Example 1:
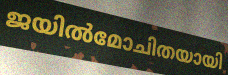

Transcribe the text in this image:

ജയിൽമോചിതയായി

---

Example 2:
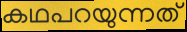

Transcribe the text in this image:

കഥപറയുന്നത്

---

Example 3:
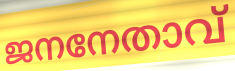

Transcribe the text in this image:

ജനനേതാവ്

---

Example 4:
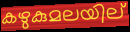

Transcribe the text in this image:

കഴുകുമലയില്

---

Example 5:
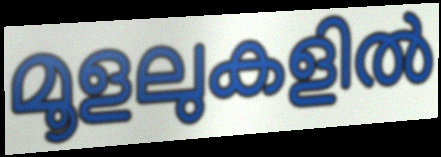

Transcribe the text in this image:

മൂളലുകളിൽ